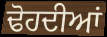
ਢੋਹਦੀਆਂ